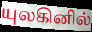
யுலகினில்